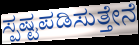
ಸ್ಪಷ್ಟಪಡಿಸುತ್ತೇನೆ